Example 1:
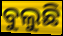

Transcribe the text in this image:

ବୁଲୁଛି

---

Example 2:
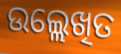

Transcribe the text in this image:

ଉଲ୍ଲେଖିତ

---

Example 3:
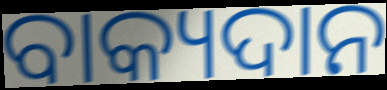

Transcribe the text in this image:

ବାକ୍ୟଦାନ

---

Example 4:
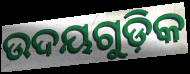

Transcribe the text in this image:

ଉଦୟଗୁଡ଼ିକ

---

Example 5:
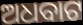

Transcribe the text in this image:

ଅଧବାଟ